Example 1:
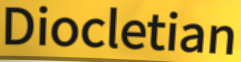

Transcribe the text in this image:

Diocletian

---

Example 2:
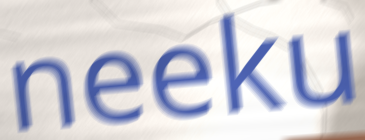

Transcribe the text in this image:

neeku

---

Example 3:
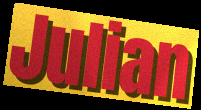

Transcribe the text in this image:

Julian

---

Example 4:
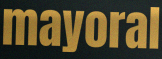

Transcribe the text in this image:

mayoral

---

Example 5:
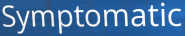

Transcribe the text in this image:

Symptomatic